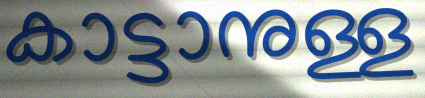
കാട്ടാനുള്ള